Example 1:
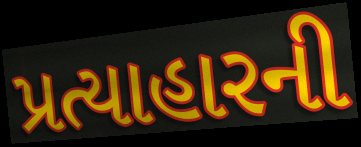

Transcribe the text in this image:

પ્રત્યાહારની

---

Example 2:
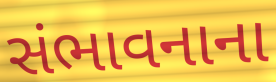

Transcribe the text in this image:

સંભાવનાના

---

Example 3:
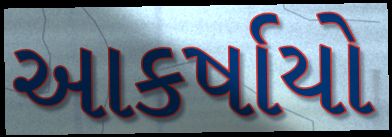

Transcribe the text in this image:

આકર્ષાયો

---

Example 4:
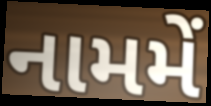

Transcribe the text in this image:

નામમેં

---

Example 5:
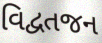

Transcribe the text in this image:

વિદ્વતજન